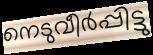
നെടുവീർപ്പിട്ടു